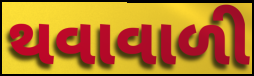
થવાવાળી